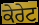
ਕੇਰੇਟ